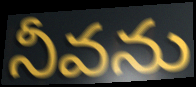
నీవను